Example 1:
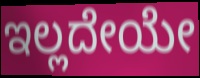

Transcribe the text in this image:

ಇಲ್ಲದೇಯೇ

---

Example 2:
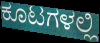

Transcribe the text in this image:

ಕೂಟಗಳಲ್ಲಿ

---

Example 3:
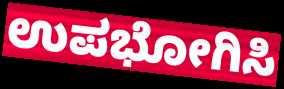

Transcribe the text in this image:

ಉಪಭೋಗಿಸಿ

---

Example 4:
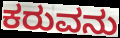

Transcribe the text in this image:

ಕರುವನು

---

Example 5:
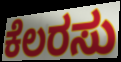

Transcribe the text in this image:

ಕೆಲರಸು